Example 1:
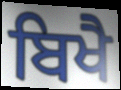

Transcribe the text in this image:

ਬਿਖੈ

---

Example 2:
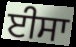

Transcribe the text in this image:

ਈਸਾ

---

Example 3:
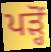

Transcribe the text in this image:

ਪੜ੍ਹੋਂ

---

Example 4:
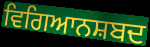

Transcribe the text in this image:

ਵਿਗਿਆਨਸ਼ਬਦ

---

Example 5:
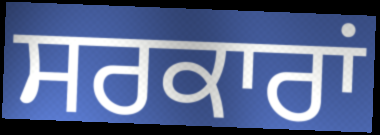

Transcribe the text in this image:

ਸਰਕਾਰਾਂ